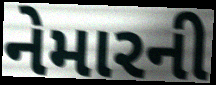
નેમારની